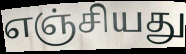
எஞ்சியது